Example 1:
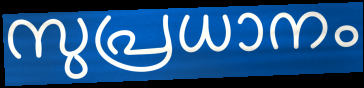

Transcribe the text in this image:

സുപ്രധാനം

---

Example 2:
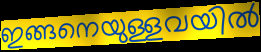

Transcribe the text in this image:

ഇങ്ങനെയുള്ളവയിൽ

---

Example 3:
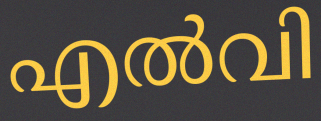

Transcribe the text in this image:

എൽവി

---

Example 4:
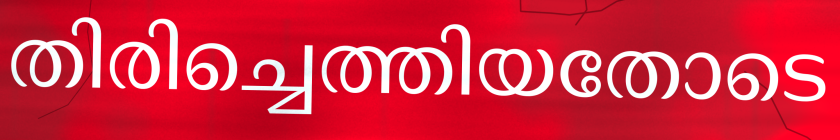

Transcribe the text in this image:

തിരിച്ചെത്തിയതോടെ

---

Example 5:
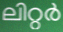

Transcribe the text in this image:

ലിറ്റർ